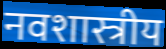
नवशास्त्रीय